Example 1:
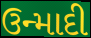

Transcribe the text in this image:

ઉન્માદી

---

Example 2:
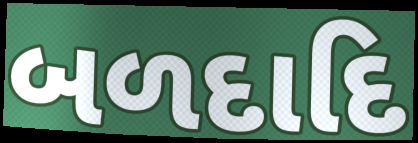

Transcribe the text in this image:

બળદાદિ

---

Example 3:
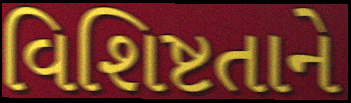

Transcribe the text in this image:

વિશિષ્ટતાને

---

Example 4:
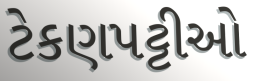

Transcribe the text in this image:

ટેકણપટ્ટીઓ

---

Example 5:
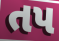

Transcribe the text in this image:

તપ